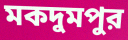
মকদুমপুর